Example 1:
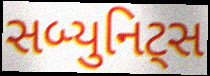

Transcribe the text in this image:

સબ્યુનિટ્સ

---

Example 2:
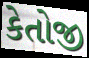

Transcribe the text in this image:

કેતોજી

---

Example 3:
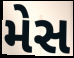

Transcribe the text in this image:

મેસ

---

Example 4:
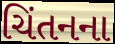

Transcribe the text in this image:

ચિંતનના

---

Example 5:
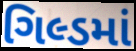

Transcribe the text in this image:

ગિલ્ડમાં